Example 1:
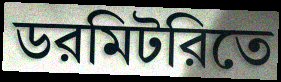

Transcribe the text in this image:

ডরমিটরিতে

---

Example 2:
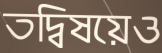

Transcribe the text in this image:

তদ্বিষয়েও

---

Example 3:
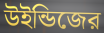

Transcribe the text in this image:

উইন্ডিজের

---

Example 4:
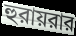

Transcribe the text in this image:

হুরায়রার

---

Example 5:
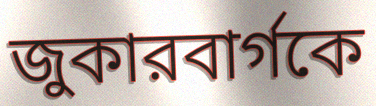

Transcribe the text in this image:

জুকারবার্গকে